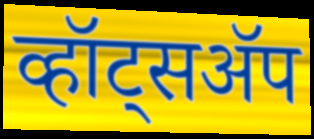
व्हॉट्सॲप